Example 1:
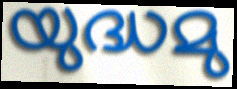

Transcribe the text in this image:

യുദ്ധമു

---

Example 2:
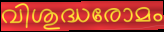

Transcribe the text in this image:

വിശുദ്ധരോമം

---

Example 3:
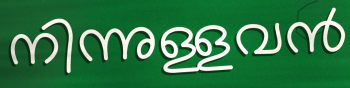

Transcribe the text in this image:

നിന്നുള്ളവൻ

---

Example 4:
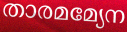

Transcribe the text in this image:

താരമമ്യേന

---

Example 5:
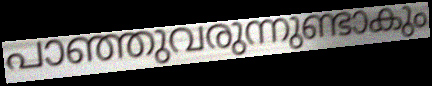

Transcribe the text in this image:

പാഞ്ഞുവരുന്നുണ്ടാകും